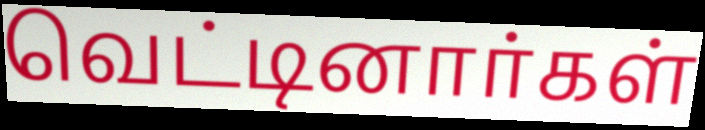
வெட்டினார்கள்